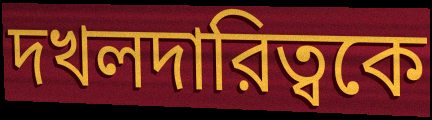
দখলদারিত্বকে